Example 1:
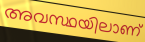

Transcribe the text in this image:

അവസ്ഥയിലാണ്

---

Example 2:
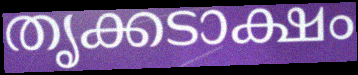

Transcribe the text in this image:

തൃക്കടാക്ഷം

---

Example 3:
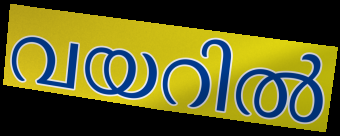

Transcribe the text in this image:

വയറിൽ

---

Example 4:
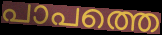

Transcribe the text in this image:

പാപത്തെ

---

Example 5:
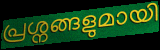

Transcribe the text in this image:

പ്രശ്നങ്ങളുമായി